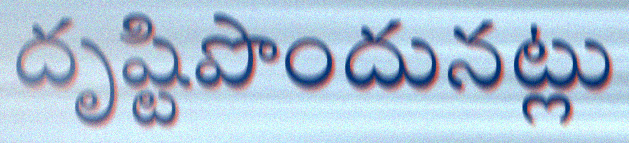
దృష్టిపొందునట్లు